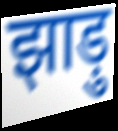
झाड़ु